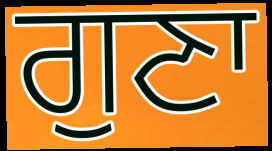
ਗੁਣਾ